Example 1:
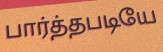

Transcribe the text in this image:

பார்த்தபடியே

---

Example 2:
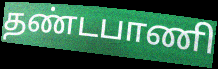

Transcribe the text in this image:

தண்டபாணி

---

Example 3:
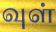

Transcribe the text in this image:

வுள்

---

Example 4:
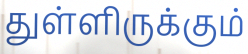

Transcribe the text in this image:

துள்ளிருக்கும்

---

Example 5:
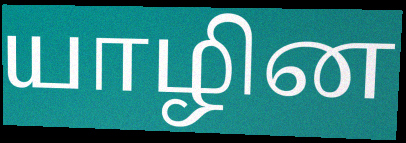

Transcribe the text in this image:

யாழின